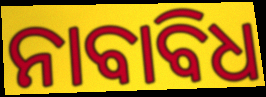
ନାବାବିଧ